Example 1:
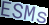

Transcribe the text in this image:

ESMs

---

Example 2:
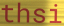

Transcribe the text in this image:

thsi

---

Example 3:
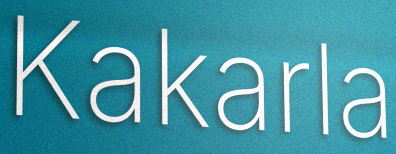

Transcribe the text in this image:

Kakarla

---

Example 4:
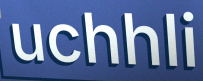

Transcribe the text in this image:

uchhli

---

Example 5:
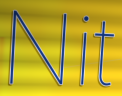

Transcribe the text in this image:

Nit